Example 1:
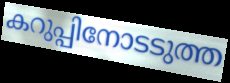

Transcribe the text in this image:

കറുപ്പിനോടടുത്ത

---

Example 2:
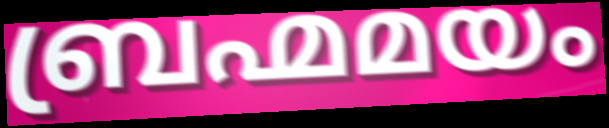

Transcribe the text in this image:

ബ്രഹ്മമയം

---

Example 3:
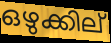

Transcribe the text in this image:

ഒഴുക്കില്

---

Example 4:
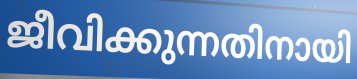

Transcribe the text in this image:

ജീവിക്കുന്നതിനായി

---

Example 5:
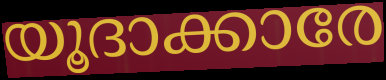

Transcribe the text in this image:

യൂദാക്കാരേ